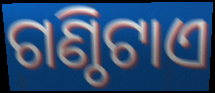
ଗଣ୍ଠିଟାଏ